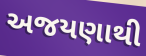
અજયણાથી